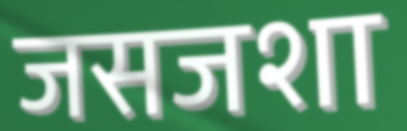
जसजशा